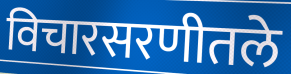
विचारसरणीतले